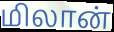
மிலான்